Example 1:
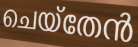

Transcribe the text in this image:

ചെയ്‌തേൻ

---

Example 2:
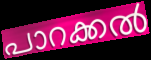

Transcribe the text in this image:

പാറക്കൽ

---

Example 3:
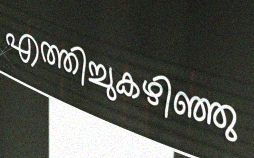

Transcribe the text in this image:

എത്തിച്ചുകഴിഞ്ഞു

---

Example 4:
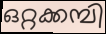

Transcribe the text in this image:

ഒറ്റക്കമ്പി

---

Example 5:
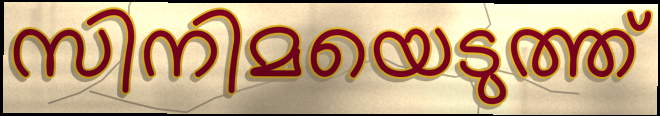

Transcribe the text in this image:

സിനിമയെടുത്ത്